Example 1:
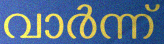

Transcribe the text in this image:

വാർന്ന്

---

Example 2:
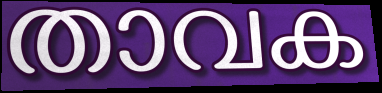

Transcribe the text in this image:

താവക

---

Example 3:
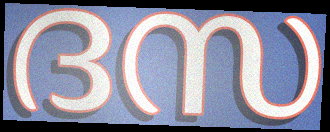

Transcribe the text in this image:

ദസ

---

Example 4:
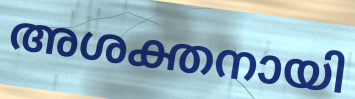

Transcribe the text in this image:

അശക്തനായി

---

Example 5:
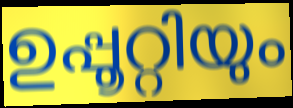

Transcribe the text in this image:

ഉപ്പൂറ്റിയും